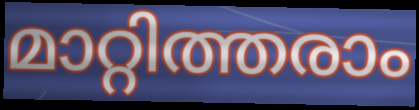
മാറ്റിത്തരാം